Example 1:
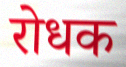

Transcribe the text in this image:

रोधक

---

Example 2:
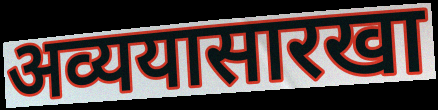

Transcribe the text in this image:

अव्ययासारखा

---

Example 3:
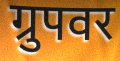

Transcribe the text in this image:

ग्रुपवर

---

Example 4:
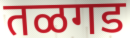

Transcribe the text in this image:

तळगड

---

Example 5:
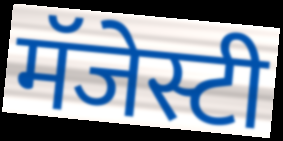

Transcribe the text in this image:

मॅजेस्टी